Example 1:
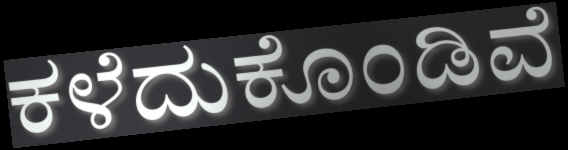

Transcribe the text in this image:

ಕಳೆದುಕೊಂಡಿವೆ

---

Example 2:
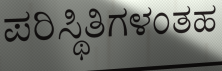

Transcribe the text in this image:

ಪರಿಸ್ಥಿತಿಗಳಂತಹ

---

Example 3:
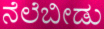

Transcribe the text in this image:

ನೆಲೆಬೀಡು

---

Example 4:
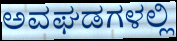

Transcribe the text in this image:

ಅವಘಡಗಳಲ್ಲಿ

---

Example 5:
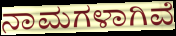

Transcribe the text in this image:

ನಾಮಗಳಾಗಿವೆ